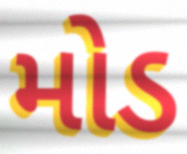
મોડ